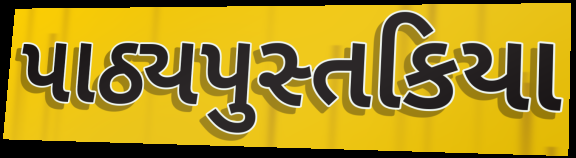
પાઠ્યપુસ્તકિયા